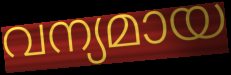
വന്യമായ